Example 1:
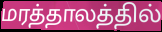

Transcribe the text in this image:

மரத்தாலத்தில்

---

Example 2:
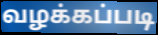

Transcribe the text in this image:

வழக்கப்படி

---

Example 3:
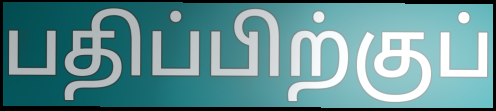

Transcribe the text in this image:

பதிப்பிற்குப்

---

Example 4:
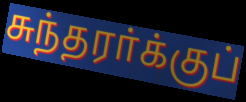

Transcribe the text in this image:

சுந்தரர்க்குப்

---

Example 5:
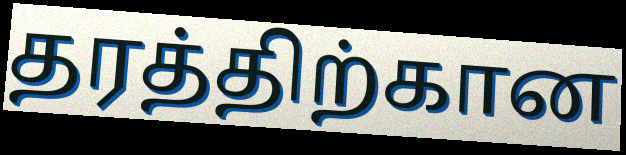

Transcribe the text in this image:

தரத்திற்கான